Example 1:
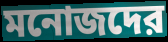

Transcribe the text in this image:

মনোজদের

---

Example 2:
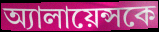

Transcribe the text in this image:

অ্যালায়েন্সকে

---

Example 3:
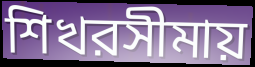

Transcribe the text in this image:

শিখরসীমায়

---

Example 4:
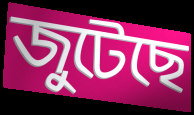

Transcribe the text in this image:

জুটেছে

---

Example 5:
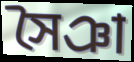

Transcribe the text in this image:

সৈঞা